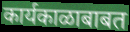
कार्यकाळाबाबत